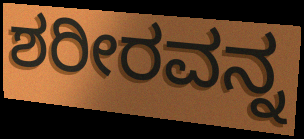
ಶರೀರವನ್ನ